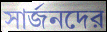
সার্জনদের